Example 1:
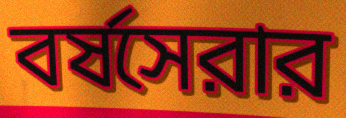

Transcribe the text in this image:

বর্ষসেরার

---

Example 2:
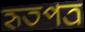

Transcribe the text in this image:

হৃতপত্র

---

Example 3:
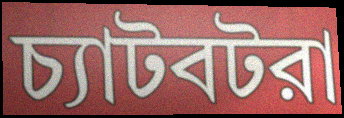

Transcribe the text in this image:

চ্যাটবটরা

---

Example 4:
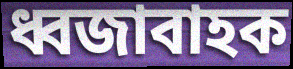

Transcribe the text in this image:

ধ্বজাবাহক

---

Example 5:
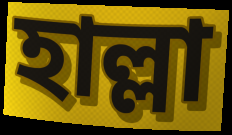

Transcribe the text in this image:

হাল্লা